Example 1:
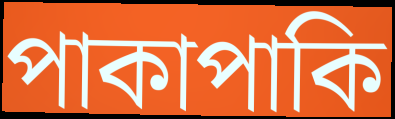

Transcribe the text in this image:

পাকাপাকি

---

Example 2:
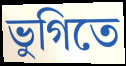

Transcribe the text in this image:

ভুগিতে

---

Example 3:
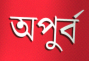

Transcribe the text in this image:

অপুর্ব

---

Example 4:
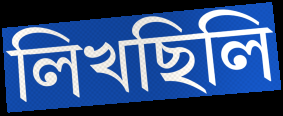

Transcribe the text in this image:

লিখছিলি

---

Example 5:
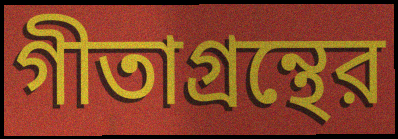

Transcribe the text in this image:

গীতাগ্রন্থের